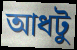
আধটু